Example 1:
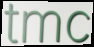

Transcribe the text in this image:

tmc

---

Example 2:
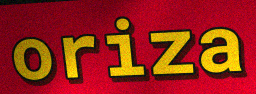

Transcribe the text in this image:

oriza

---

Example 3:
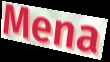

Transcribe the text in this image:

Mena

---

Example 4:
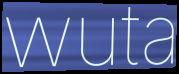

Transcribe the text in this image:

wuta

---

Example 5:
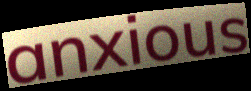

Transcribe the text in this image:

anxious